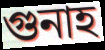
গুনাহ